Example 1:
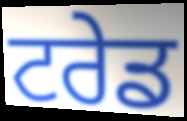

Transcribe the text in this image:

ਟਰੇਡ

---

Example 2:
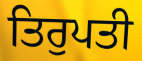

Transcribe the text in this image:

ਤਿਰੁਪਤੀ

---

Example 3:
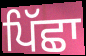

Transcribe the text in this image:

ਪਿੱਛਾ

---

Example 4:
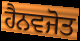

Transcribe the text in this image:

ਹੈਨਵਜੋਤ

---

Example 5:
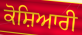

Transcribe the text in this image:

ਕੋਸ਼ਿਆਰੀ